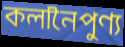
কলানৈপুণ্য